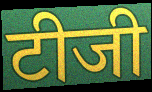
टीजी